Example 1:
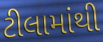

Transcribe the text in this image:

ટીલામાંથી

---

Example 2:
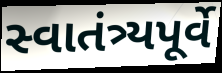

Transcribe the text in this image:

સ્વાતંત્ર્યપૂર્વે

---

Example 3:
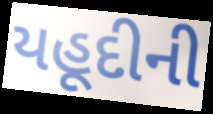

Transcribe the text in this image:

યહૂદીની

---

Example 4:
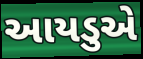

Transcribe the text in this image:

આયડુએ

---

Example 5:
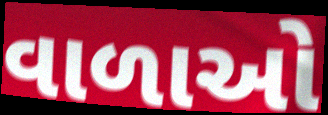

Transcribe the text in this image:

વાળાઓ